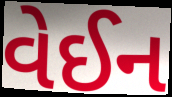
વેઈન